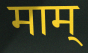
माम्